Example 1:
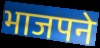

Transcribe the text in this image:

भाजपने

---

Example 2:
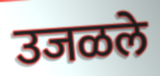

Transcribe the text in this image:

उजळले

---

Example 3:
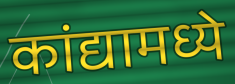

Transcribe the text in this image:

कांद्यामध्ये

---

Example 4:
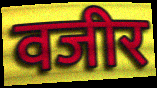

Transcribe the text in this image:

वजीर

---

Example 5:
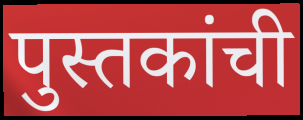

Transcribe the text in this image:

पुस्तकांची